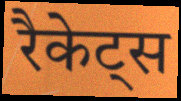
रैकेट्स